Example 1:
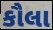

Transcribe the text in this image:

કૌલા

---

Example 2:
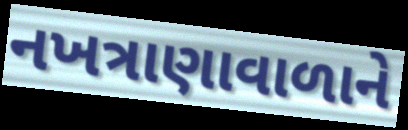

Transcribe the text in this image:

નખત્રાણાવાળાને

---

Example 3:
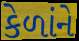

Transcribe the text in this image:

કેળાંને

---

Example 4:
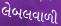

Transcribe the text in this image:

લેબલવાળી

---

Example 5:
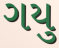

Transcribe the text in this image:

ગયુ